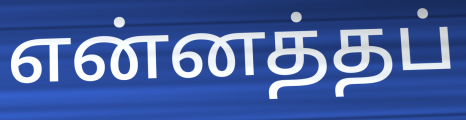
என்னத்தப்